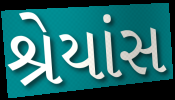
શ્રેયાંસ